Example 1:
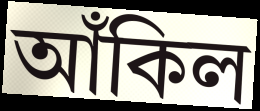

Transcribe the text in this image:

আঁকিল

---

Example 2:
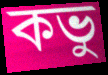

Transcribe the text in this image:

কভু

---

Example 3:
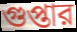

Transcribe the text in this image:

গুপ্তার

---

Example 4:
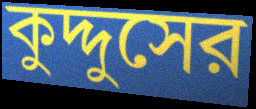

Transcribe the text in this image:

কুদ্দুসের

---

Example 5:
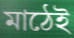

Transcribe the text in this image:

মাঠেই